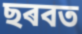
ছৰবত